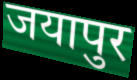
जयापुर